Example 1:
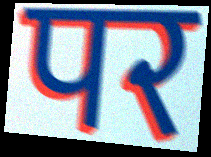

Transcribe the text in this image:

पर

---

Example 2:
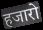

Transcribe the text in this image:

हजारो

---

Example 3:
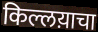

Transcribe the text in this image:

किल्लय़ाचा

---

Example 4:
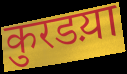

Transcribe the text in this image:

कुरडय़ा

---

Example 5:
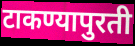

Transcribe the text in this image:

टाकण्यापुरती